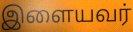
இளையவர்